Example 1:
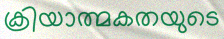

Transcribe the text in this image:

ക്രിയാത്മകതയുടെ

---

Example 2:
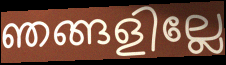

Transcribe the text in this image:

ഞങ്ങളില്ലേ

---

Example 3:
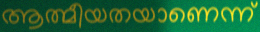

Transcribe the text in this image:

ആത്മീയതയാണെന്ന്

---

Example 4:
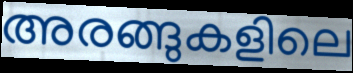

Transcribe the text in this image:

അരങ്ങുകളിലെ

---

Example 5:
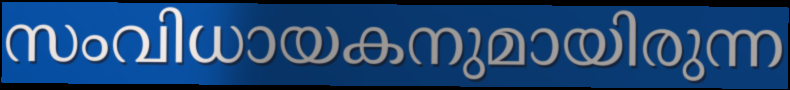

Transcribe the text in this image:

സംവിധായകനുമായിരുന്ന